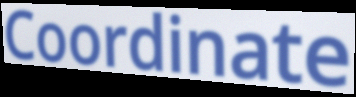
Coordinate